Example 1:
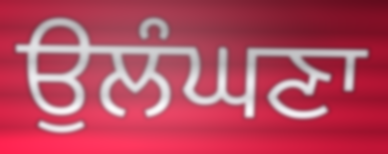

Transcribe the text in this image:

ਉਲੰਘਣਾ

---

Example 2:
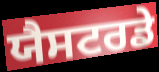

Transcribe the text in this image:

ਯੈਸਟਰਡੇ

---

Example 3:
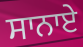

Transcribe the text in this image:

ਸਾਨਾਏ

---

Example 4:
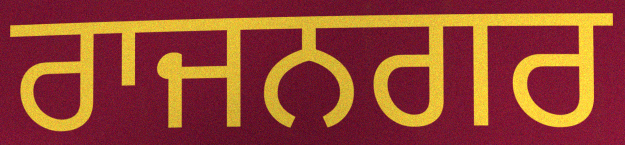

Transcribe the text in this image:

ਰਾਜਨਗਰ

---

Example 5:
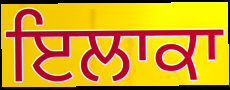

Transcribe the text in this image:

ਇਲਾਕਾ